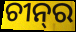
ଚୀନ୍‌ର